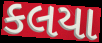
કલયા